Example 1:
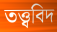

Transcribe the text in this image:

তত্ত্ববিদ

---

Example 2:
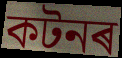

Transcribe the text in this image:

কটনৰ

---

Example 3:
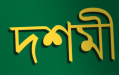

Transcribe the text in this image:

দশমী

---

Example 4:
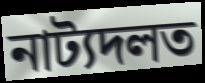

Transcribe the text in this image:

নাট্যদলত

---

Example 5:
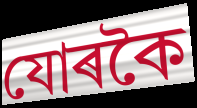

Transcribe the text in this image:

যোৰকৈ